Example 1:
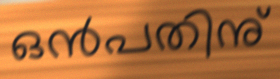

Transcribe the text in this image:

ഒൻപതിനു്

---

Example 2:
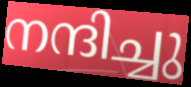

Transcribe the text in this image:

നന്ദിച്ചു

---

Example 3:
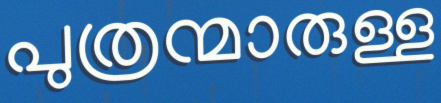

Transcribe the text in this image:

പുത്രന്മാരുള്ള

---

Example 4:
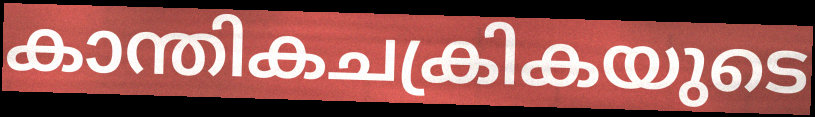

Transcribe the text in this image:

കാന്തികചക്രികയുടെ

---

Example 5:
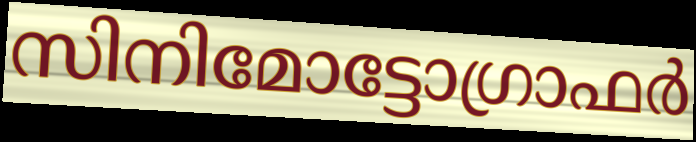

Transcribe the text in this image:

സിനിമോട്ടോഗ്രാഫർ